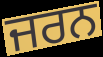
ਜਰਨ